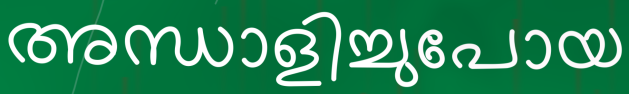
അന്ധാളിച്ചുപോയ